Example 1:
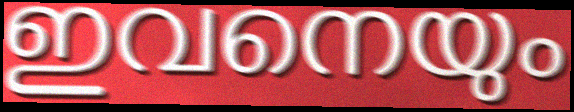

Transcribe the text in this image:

ഇവനെയും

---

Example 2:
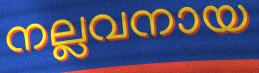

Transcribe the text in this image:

നല്ലവനായ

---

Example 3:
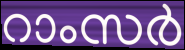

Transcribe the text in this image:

റാംസർ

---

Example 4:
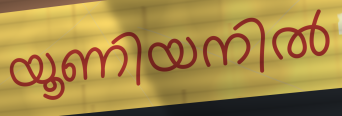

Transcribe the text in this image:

യൂണിയനിൽ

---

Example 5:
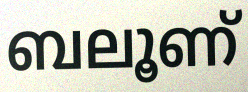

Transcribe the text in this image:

ബലൂണ്